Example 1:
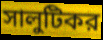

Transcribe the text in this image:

সালুটিকর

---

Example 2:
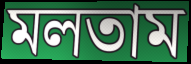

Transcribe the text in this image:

মলতাম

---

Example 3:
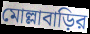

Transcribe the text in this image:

মোল্লাবাড়ির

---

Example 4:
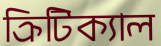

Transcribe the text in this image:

ক্রিটিক্যাল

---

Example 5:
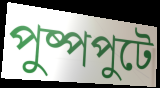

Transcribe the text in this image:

পুষ্পপুটে